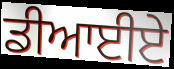
ਡੀਆਈਏ